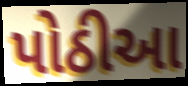
પોઠીઆ